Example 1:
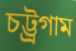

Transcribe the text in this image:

চট্ট্রগাম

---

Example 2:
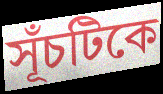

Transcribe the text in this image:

সূঁচটিকে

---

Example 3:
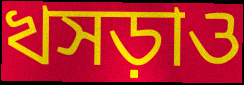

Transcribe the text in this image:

খসড়াও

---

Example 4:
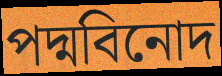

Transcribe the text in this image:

পদ্মবিনোদ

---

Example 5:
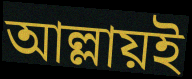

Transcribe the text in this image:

আল্লায়ই